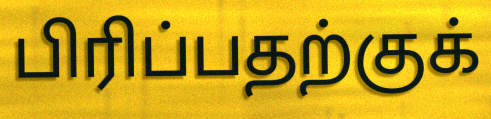
பிரிப்பதற்குக்